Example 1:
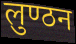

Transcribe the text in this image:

लुण्ठन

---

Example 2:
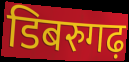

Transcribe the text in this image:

डिबरुगढ़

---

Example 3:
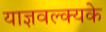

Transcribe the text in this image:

याज्ञवल्क्यके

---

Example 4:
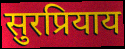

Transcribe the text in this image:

सुरप्रियाय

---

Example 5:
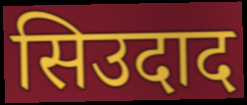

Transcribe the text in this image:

सिउदाद